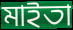
মাইতা